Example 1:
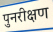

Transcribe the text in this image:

पुनरीक्षण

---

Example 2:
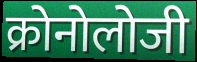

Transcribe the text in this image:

क्रोनोलोजी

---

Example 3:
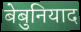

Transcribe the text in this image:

बेबुनियाद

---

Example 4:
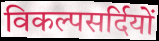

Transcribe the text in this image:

विकल्पसर्दियों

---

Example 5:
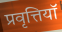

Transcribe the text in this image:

प्रवृत्तियॉ